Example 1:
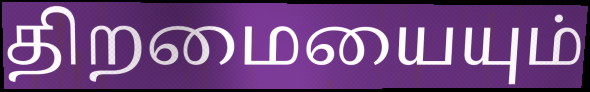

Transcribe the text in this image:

திறமையையும்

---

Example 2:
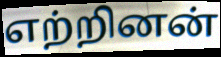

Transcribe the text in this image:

எற்றினன்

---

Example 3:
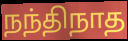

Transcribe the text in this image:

நந்திநாத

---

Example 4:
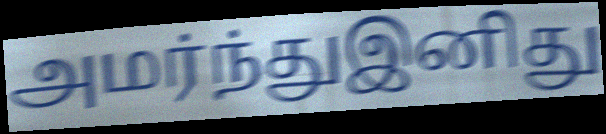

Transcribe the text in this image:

அமர்ந்துஇனிது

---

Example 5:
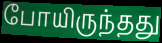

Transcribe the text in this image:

போயிருந்தது